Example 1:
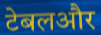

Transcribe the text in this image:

टेबलऔर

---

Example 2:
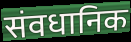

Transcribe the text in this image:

संवधानिक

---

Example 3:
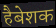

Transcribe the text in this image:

हैबेशक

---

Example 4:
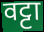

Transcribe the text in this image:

वट्टा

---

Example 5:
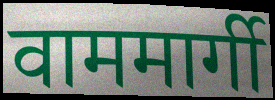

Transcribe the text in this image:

वाममार्गी